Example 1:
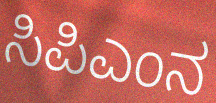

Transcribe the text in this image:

ಸಿಪಿಎಂನ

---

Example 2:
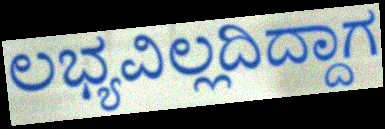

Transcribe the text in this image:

ಲಭ್ಯವಿಲ್ಲದಿದ್ದಾಗ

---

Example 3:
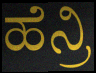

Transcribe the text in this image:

ಹೆನ್ರಿ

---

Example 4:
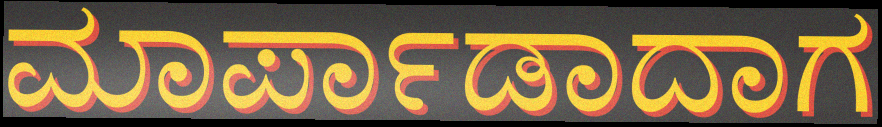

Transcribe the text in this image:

ಮಾರ್ಪಾಡಾದಾಗ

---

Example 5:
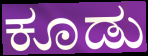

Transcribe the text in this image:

ಕೂಡು